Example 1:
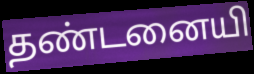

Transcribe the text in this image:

தண்டனையி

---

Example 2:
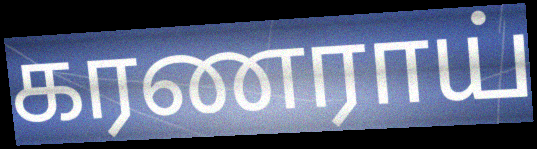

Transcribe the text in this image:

கரணராய்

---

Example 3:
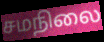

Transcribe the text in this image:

சமநிலை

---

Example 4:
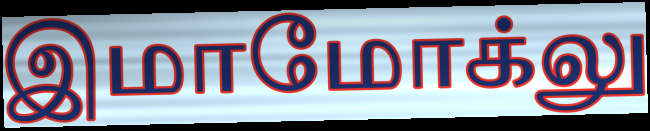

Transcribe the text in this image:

இமாமோக்லு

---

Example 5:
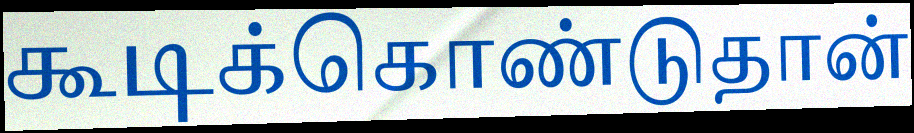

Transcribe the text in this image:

கூடிக்கொண்டுதான்